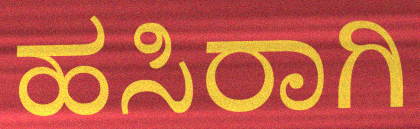
ಹಸಿರಾಗಿ